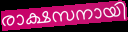
രാക്ഷസനായി